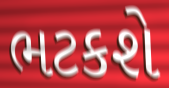
ભટકશે